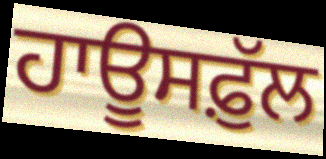
ਹਾਊਸਫ਼ੁੱਲ